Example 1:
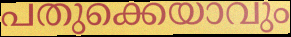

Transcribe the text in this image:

പതുക്കെയാവും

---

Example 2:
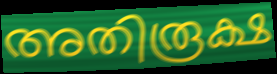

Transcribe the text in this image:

അതിരൂക്ഷ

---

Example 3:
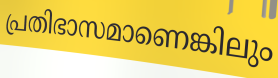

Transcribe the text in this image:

പ്രതിഭാസമാണെങ്കിലും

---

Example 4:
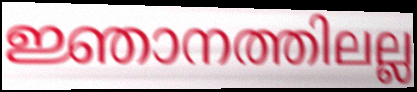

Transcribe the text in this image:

ജ്ഞാനത്തിലല്ല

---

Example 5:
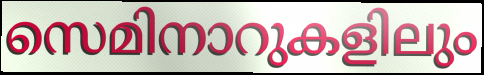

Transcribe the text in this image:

സെമിനാറുകളിലും